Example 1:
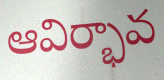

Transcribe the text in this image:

ఆవిర్భావ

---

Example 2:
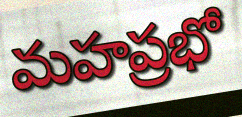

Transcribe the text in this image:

మహప్రభో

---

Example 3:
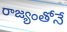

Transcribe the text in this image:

రాజ్యంతోనే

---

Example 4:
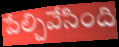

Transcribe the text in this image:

పేల్చివేసింది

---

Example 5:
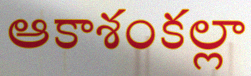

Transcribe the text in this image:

ఆకాశంకల్లా